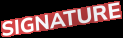
SIGNATURE